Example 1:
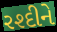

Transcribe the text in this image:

રશ્દીને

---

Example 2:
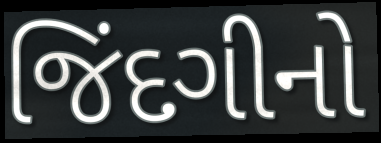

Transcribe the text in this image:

જિંદગીનો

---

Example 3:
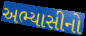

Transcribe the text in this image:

અભ્યાસીનો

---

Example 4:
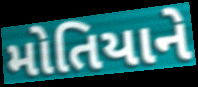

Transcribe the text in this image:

મોતિયાને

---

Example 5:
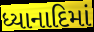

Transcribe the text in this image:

ધ્યાનાદિમાં